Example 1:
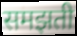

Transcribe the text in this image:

समझती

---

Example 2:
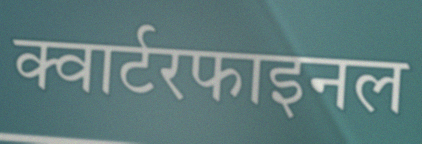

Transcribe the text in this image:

क्वार्टरफाइनल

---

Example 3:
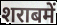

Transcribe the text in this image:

शराबमें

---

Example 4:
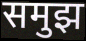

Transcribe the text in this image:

समुझ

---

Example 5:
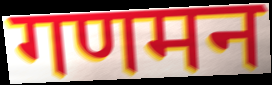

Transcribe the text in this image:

गणमन